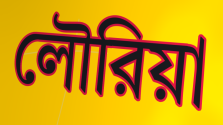
লৌরিয়া